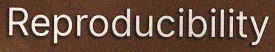
Reproducibility